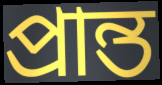
প্রান্ত